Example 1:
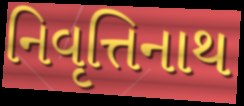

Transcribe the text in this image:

નિવૃત્તિનાથ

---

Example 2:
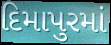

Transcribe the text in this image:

દિમાપુરમાં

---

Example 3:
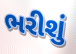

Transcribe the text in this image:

ભરીશું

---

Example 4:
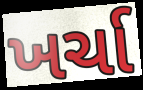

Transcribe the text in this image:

ખર્ચા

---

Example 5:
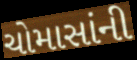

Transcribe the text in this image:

ચોમાસાંની